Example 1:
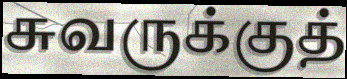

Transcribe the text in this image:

சுவருக்குத்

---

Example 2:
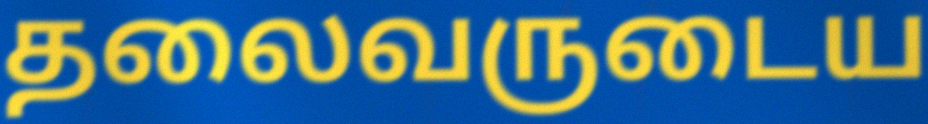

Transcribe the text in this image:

தலைவருடைய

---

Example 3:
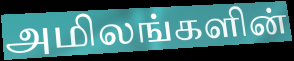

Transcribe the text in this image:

அமிலங்களின்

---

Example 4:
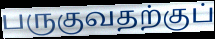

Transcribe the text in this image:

பருகுவதற்குப்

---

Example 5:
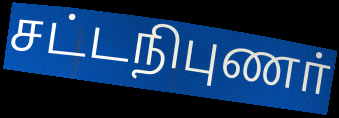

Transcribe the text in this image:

சட்டநிபுணர்